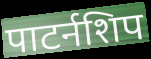
पाटर्नशिप